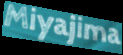
Miyajima